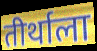
तीर्थाला